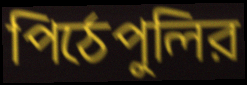
পিঠেপুলির